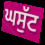
ਘਸੁੱਟ